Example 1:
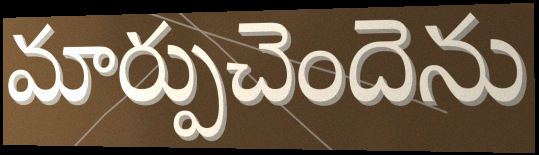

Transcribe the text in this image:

మార్పుచెందెను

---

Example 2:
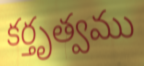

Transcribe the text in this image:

కర్తృత్వము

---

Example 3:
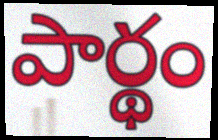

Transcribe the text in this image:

పార్థం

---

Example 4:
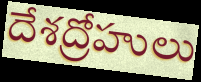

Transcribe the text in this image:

దేశద్రోహులు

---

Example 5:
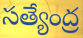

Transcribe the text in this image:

సత్యేంద్ర